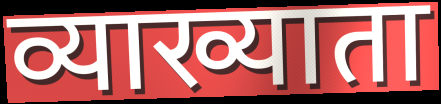
व्याख्याता